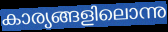
കാര്യങ്ങളിലൊന്നു